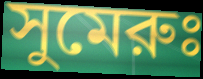
সুমেরুঃ